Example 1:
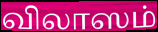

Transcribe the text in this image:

விலாஸம்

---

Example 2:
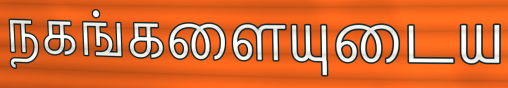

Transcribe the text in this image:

நகங்களையுடைய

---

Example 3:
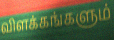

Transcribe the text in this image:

விளக்கங்களும்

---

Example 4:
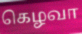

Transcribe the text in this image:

கெழவா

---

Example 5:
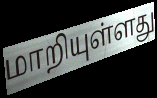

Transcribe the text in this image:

மாறியுள்ளது